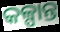
କଳ୍ପାନ୍ତ